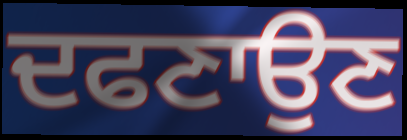
ਦਫਣਾਉਣ